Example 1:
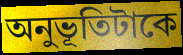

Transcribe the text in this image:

অনুভূতিটাকে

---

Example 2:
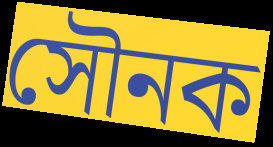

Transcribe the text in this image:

সৌনক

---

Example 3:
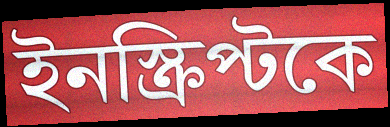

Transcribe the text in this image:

ইনস্ক্রিপ্টকে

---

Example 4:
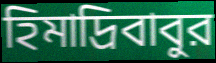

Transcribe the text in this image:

হিমাদ্রিবাবুর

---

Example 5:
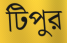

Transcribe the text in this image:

টিপুর